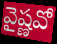
వైష్ణవో